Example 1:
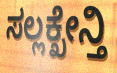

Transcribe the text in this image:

ಸಲ್ಲಕ್ಖೇನ್ತಿ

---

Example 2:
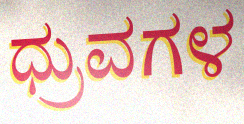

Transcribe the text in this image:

ಧ್ರುವಗಳ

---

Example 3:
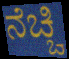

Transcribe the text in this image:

ನೆಚ್ಚಿ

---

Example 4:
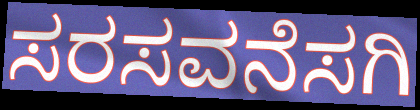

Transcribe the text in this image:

ಸರಸವನೆಸಗಿ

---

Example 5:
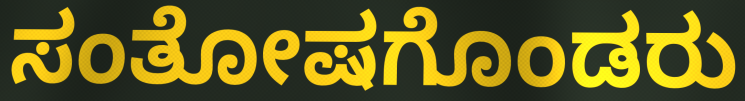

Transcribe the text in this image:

ಸಂತೋಷಗೊಂಡರು